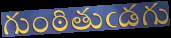
గుంఠితుఁడగు